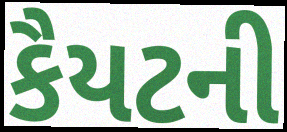
કૈયટની